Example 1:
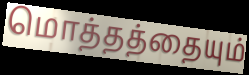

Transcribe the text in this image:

மொத்தத்தையும்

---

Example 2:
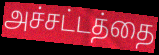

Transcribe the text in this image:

அச்சட்டத்தை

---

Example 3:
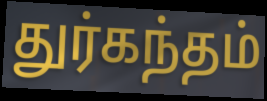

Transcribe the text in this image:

துர்கந்தம்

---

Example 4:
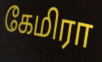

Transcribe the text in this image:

கேமிரா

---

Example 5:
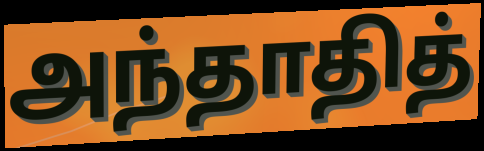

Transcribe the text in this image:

அந்தாதித்